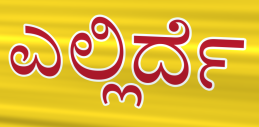
ಎಲ್ಲಿರ್ದೆ